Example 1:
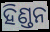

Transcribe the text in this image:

ହିଣ୍ଡନ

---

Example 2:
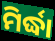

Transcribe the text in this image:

ମିର୍ଦ୍ଧା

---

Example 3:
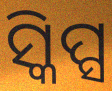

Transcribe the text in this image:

ସ୍କିପ୍ସ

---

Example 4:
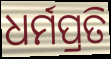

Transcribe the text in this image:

ଧର୍ମପ୍ରତି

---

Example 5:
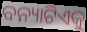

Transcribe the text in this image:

ବନ୍ୟାଟିଏକୁ